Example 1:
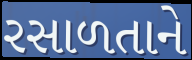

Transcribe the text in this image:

રસાળતાને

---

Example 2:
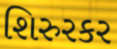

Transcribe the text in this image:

શિરુરકર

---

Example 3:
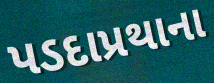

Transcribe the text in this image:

પડદાપ્રથાના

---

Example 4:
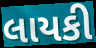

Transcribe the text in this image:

લાયકી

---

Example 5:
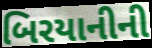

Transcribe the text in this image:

બિરયાનીની